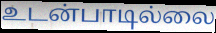
உடன்பாடில்லை